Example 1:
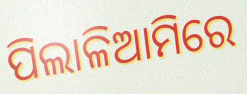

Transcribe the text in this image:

ପିଲାଳିଆମିରେ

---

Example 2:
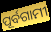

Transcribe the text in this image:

ପୂର୍ବଗାମୀ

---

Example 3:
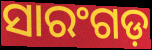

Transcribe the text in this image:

ସାରଂଗଡ଼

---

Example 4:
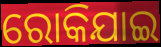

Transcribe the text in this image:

ରୋକିଯାଇ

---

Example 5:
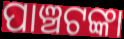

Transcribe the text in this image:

ପାଞ୍ଚଟଙ୍କା